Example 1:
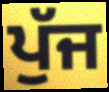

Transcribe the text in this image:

ਪੁੱਜ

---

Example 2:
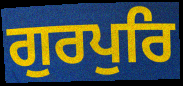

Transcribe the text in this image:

ਗੁਰਪੁਰਿ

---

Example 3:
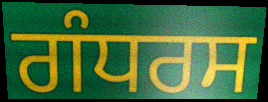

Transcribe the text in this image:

ਗੰਧਰਸ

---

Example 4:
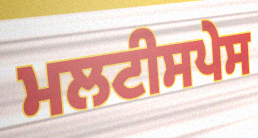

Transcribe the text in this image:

ਮਲਟੀਸਪੇਸ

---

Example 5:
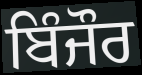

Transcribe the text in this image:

ਬਿੰਜੌਰ